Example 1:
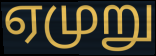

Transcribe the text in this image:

ஏமுறு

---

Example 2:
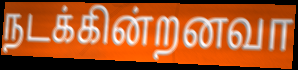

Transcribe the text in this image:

நடக்கின்றனவா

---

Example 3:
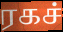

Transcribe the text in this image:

ரகச்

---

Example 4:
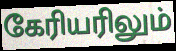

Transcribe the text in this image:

கேரியரிலும்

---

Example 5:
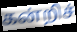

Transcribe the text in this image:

கன்றிச்